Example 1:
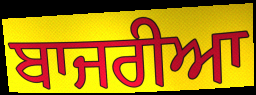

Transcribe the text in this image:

ਬਾਜਰੀਆ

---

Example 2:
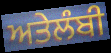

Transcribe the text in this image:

ਅਤੇਲੰਬੀ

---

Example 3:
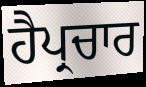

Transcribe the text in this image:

ਹੈਪ੍ਰਚਾਰ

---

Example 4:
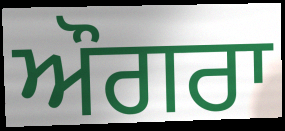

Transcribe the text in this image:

ਔਗਰਾ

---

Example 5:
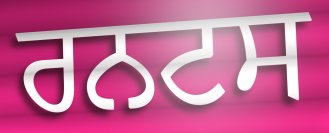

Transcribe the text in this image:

ਰਨਟਸ